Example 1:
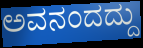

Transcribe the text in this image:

ಅವನಂದದ್ದು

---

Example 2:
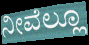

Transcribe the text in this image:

ನೀವೆಲ್ಲೂ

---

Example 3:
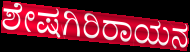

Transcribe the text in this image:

ಶೇಷಗಿರಿರಾಯನ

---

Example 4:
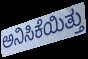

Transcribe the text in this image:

ಅನಿಸಿಕೆಯಿತ್ತು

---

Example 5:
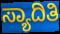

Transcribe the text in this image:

ಸ್ಯಾದಿತಿ